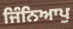
ਜਿੰਨਿਆਪੁ